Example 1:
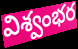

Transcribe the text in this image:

విశ్వంభర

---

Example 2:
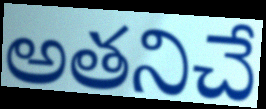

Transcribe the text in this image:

అతనిచే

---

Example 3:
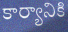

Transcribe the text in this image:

కార్యానికి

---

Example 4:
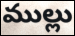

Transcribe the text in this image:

ముల్లు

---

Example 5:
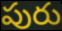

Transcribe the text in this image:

పురు